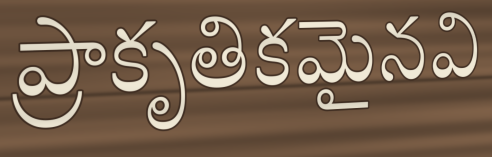
ప్రాకృతికమైనవి